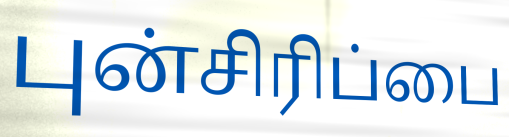
புன்சிரிப்பை